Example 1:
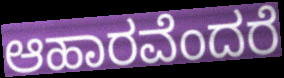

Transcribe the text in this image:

ಆಹಾರವೆಂದರೆ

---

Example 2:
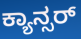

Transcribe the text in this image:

ಕ್ಯಾನ್ಸರ್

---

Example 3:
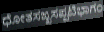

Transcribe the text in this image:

ಧೋತಸಙ್ಖಸಪ್ಪಟಿಭಾಗಂ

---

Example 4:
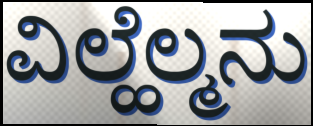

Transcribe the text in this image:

ವಿಲ್ಹೆಲ್ಮನು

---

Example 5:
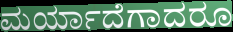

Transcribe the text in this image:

ಮರ್ಯಾದೆಗಾದರೂ